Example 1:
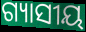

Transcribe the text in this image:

ଗ୍ୟାସୀୟ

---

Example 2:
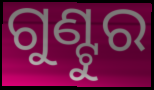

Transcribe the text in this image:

ଗୁଣ୍ଟୁର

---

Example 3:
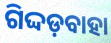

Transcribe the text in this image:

ଗିଦ୍ଦଡ଼ବାହା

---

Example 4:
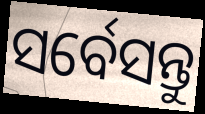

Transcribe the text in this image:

ସର୍ବେସନ୍ତୁ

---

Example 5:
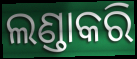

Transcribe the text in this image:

ଲଣ୍ଡାକରି